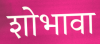
शोभावा